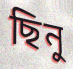
ছিনু